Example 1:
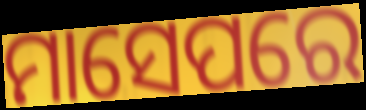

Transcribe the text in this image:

ମାସେପରେ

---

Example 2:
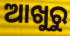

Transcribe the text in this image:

ଆଖୁରୁ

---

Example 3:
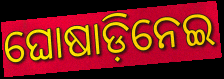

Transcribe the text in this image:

ଘୋଷାଡ଼ିନେଇ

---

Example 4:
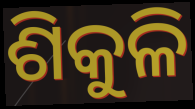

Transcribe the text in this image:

ଶିକୁଳି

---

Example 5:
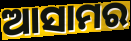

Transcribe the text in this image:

ଆସାମର